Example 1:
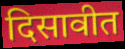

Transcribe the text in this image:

दिसावीत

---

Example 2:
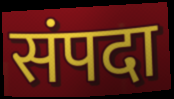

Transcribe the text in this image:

संपदा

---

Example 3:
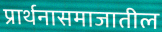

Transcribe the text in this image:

प्रार्थनासमाजातील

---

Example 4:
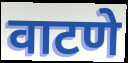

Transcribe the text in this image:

वाटणे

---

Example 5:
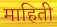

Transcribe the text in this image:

माहिती